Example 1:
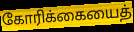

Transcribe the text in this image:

கோரிக்கையைத்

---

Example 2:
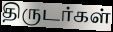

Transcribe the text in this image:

திருடர்கள்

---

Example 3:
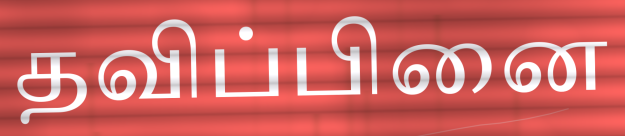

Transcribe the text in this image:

தவிப்பினை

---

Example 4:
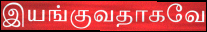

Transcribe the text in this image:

இயங்குவதாகவே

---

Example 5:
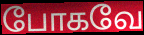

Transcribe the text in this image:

போகவே